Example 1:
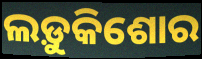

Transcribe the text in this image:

ଲଡ଼ୁକିଶୋର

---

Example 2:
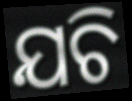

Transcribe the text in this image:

ଯଚି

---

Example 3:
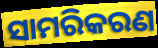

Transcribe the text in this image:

ସାମରିକରଣ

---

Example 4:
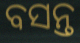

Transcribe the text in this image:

ବସନ୍ତ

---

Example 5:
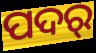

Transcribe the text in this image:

ପଦର୍